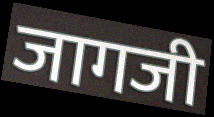
जागजी